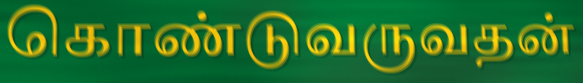
கொண்டுவருவதன்